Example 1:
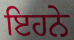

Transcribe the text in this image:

ਇਹਨੇ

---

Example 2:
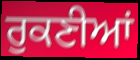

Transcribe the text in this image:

ਰੁਕਣੀਆਂ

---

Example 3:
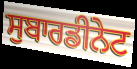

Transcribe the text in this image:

ਸੁਬਾਰਡੀਨੇਟ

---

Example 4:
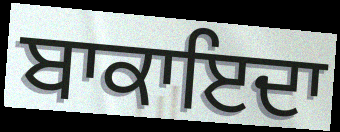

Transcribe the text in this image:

ਬਾਕਾਇਦਾ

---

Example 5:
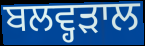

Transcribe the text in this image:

ਬਲਵ੍ਹੜਾਲ